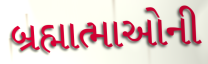
બ્રહ્માત્માઓની